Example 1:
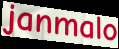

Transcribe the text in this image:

janmalo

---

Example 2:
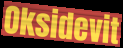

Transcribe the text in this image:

Oksidevit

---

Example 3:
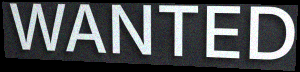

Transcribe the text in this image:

WANTED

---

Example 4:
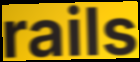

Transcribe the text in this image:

rails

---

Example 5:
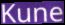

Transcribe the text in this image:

Kune